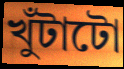
খুঁটাটো